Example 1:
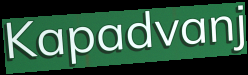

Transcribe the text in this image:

Kapadvanj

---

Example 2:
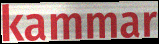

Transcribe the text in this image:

kammar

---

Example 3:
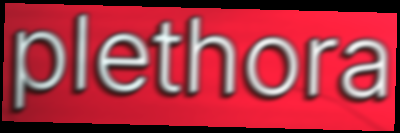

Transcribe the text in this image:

plethora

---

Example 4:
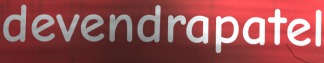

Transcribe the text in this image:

devendrapatel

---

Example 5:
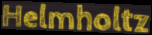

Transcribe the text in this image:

Helmholtz